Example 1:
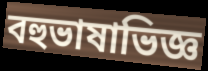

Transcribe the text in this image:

বহুভাষাভিজ্ঞ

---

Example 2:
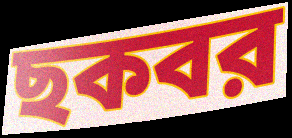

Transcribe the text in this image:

ছকবর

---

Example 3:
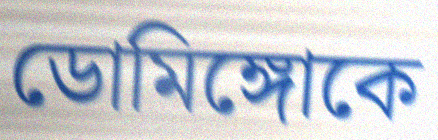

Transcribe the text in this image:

ডোমিঙ্গোকে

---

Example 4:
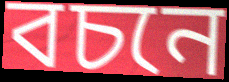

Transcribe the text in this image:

বচনে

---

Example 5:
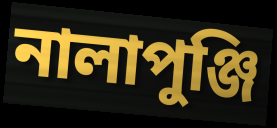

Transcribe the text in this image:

নালাপুঞ্জি